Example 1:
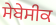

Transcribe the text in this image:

ਸੇਬੇਸੀਕ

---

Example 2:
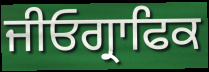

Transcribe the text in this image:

ਜੀਓਗ੍ਰਾਫਿਕ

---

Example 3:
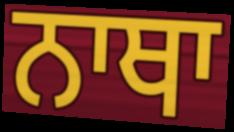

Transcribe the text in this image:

ਨਾਥਾ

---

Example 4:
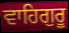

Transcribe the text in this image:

ਵਾਹਿਗੁਰੂ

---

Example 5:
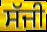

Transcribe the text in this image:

ਸੱਜੀ